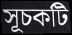
সূচকটি